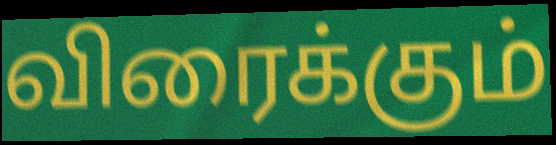
விரைக்கும்